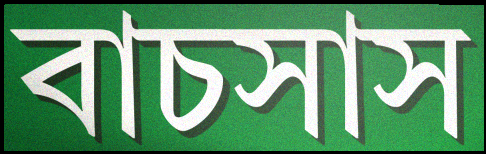
বাচসাস